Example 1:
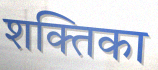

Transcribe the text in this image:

शक्तिका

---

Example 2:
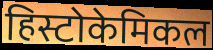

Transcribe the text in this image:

हिस्टोकेमिकल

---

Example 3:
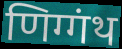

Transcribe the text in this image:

णिग्गंथ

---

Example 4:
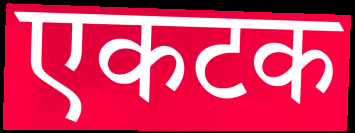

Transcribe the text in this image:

एकटक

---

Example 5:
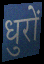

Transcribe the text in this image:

धुरों